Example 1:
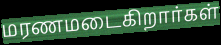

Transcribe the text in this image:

மரணமடைகிறார்கள்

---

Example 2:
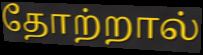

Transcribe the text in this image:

தோற்றால்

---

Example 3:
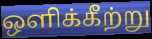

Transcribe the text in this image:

ஒளிக்கீற்று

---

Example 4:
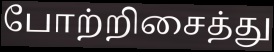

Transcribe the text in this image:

போற்றிசைத்து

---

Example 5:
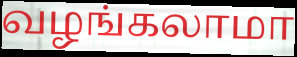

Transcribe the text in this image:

வழங்கலாமா